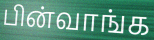
பின்வாங்க